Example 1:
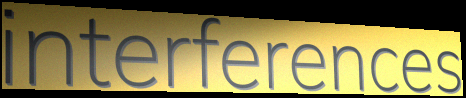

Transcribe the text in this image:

interferences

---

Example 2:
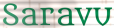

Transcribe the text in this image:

Saravu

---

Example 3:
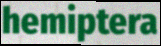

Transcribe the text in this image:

hemiptera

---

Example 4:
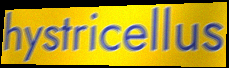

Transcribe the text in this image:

hystricellus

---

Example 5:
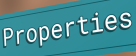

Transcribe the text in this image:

Properties